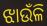
ଝାଉଁଳି